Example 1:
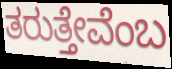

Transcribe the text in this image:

ತರುತ್ತೇವೆಂಬ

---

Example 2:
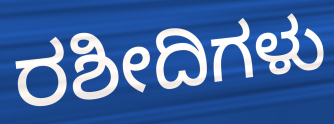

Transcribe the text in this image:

ರಶೀದಿಗಳು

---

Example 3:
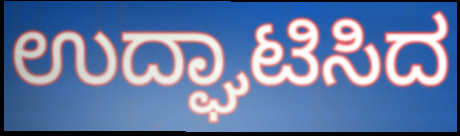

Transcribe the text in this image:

ಉದ್ಘಾಟಿಸಿದ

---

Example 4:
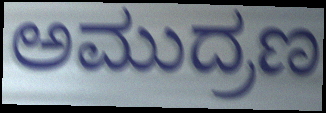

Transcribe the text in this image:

ಅಮುದ್ರಣ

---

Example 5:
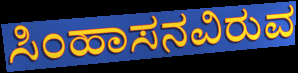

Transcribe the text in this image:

ಸಿಂಹಾಸನವಿರುವ